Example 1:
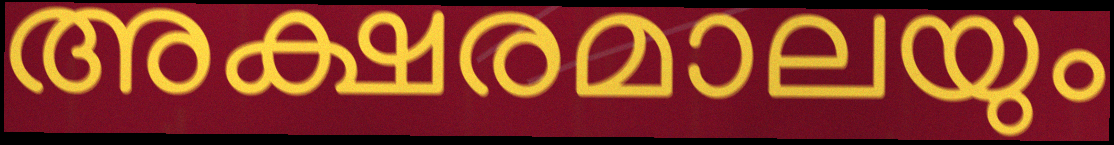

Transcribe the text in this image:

അക്ഷരമാലയും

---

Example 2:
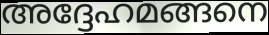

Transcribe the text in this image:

അദ്ദേഹമങ്ങനെ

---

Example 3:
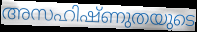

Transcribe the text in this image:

അസഹിഷ്ണുതയുടെ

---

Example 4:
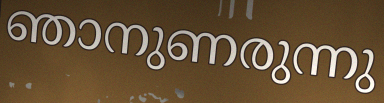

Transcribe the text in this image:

ഞാനുണരുന്നു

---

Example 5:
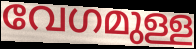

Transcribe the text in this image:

വേഗമുള്ള